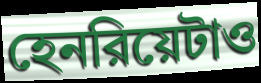
হেনরিয়েটাও